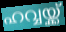
ഹവ്വയ്ക്ക്